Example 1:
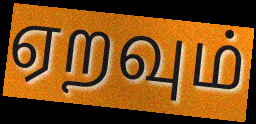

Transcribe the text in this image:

ஏறவும்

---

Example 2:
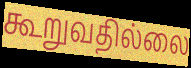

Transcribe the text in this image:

கூறுவதில்லை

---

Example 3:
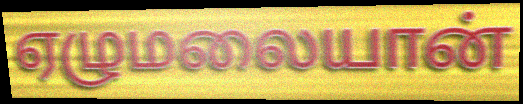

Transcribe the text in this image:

ஏழுமலையான்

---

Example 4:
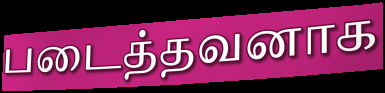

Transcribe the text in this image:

படைத்தவனாக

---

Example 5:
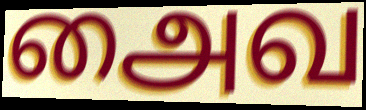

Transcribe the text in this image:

அைவ